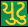
યુટુ